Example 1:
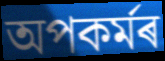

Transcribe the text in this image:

অপকৰ্মৰ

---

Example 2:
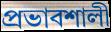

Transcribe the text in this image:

প্ৰভাবশালী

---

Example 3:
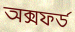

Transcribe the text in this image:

অক্সফৰ্ড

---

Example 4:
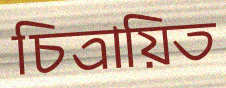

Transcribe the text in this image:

চিত্ৰায়িত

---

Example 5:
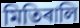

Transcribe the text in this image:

মিতিৰালি